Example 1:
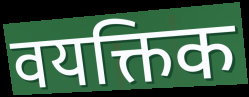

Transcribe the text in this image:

वयक्तिक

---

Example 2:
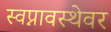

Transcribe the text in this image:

स्वप्नावस्थेवर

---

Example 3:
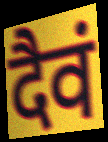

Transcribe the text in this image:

दैवं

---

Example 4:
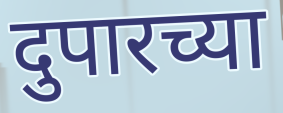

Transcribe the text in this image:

दुपारच्या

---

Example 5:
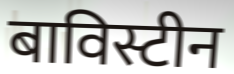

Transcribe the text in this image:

बाविस्टीन